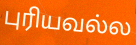
புரியவல்ல